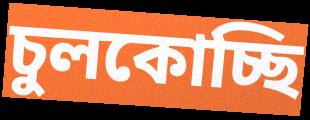
চুলকোচ্ছি